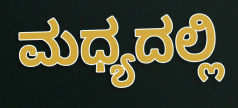
ಮಧ್ಯದಲ್ಲಿ